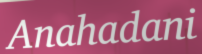
Anahadani